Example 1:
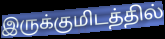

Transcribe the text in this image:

இருக்குமிடத்தில்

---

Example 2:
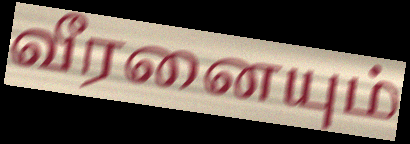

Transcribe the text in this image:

வீரனையும்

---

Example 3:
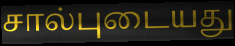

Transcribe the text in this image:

சால்புடையது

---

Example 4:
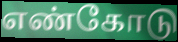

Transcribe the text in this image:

எண்கோடு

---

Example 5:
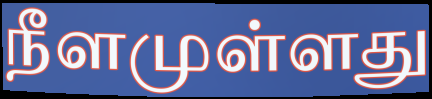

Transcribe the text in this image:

நீளமுள்ளது